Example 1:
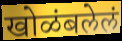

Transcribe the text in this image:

खोळंबलेलं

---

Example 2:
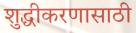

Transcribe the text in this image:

शुद्धीकरणासाठी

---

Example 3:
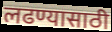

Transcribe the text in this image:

लढण्यासाठी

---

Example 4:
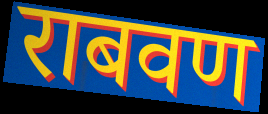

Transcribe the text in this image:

राबवण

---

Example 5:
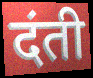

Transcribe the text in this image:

दंती